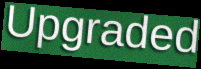
Upgraded